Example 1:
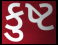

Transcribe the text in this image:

કુષ્ટ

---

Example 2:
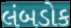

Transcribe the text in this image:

લંબડોક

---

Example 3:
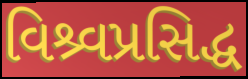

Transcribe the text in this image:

વિશ્ર્વપ્રસિદ્ધ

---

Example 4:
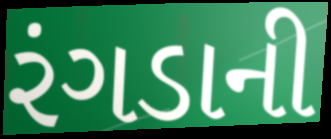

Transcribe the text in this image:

રંગડાની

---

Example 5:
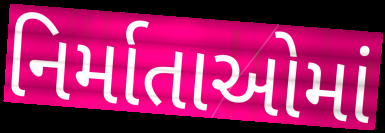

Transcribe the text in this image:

નિર્માતાઓમાં